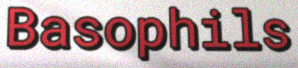
Basophils